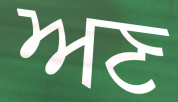
ਅਣ